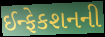
ઈન્ફેકશનની